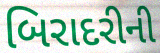
બિરાદરીની